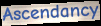
Ascendancy